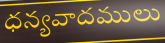
ధన్యవాదములు